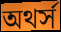
অথর্স